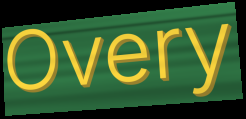
Overy